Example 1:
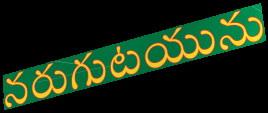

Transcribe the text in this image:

నరుగుటయును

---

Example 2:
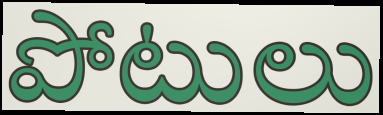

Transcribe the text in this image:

పోటులు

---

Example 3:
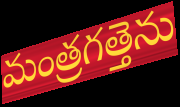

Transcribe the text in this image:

మంత్రగత్తెను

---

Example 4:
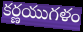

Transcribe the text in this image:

కర్ణయుగళం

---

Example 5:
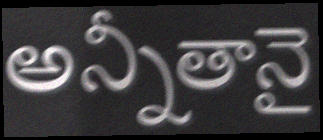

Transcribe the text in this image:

అన్నీతానై